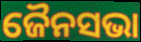
ଜୈନସଭା